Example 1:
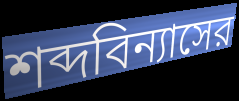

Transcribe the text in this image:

শব্দবিন্যাসের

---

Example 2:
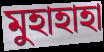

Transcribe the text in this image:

মুহাহাহা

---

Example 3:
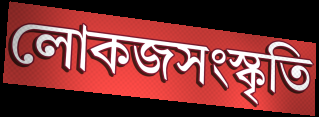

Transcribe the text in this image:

লোকজসংস্কৃতি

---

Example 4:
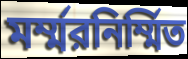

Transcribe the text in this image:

মর্ম্মরনির্ম্মিত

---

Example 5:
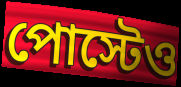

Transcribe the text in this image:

পোস্টেও